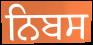
ਨਿਬਸ